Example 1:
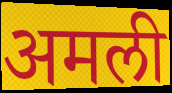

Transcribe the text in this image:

अमली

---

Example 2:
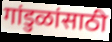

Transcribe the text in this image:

गांडुळांसाठी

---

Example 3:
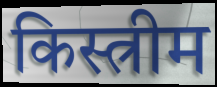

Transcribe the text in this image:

किस्त्रीम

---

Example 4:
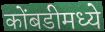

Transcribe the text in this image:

कोंबडीमध्ये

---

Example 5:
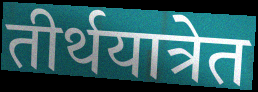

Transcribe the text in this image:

तीर्थयात्रेत